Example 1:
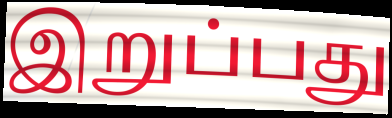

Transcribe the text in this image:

இறுப்பது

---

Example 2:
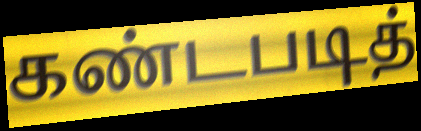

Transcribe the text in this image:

கண்டபடித்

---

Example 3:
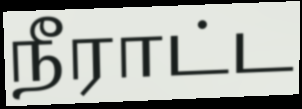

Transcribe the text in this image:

நீராட்ட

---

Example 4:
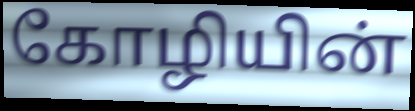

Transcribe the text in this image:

கோழியின்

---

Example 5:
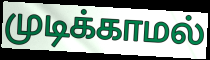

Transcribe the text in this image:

முடிக்காமல்